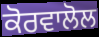
ਕੋਰਵਾਲੋਲ